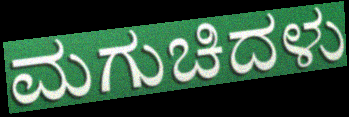
ಮಗುಚಿದಳು